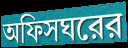
অফিসঘরের